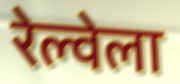
रेल्वेला